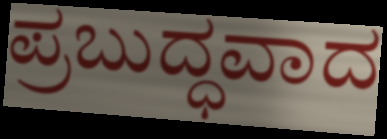
ಪ್ರಬುದ್ಧವಾದ